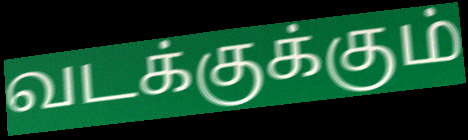
வடக்குக்கும்